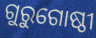
ଗୁରୁଗୋଷ୍ଠୀ